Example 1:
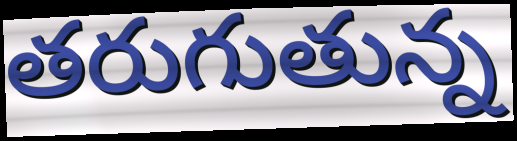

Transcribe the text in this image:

తరుగుతున్న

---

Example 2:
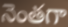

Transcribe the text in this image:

నెంతగా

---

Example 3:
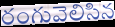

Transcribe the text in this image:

రంగువెలిసిన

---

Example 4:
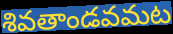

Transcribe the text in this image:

శివతాండవమట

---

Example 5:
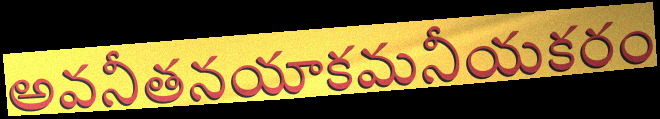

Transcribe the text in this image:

అవనీతనయాకమనీయకరం